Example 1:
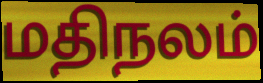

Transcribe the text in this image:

மதிநலம்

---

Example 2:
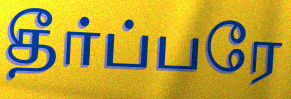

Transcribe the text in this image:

தீர்ப்பரே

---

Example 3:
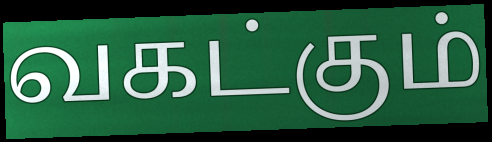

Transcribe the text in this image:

வகட்கும்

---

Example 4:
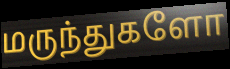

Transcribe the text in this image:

மருந்துகளோ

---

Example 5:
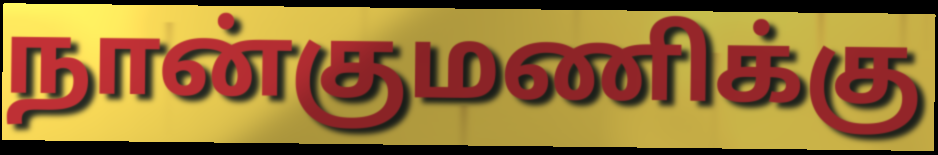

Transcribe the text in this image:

நான்குமணிக்கு